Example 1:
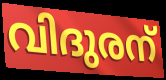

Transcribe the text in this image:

വിദുരന്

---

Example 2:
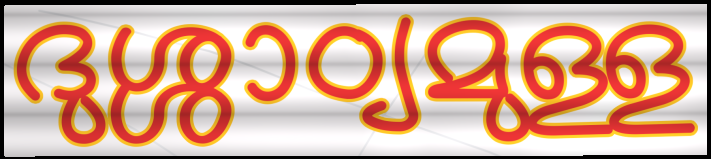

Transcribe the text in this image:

ദുശ്ശാഠ്യമുള്ള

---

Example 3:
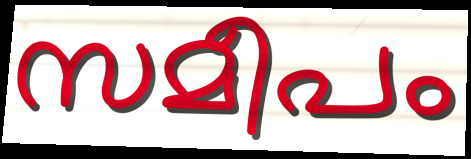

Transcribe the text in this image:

സമീപം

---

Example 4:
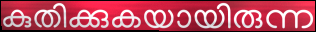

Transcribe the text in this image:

കുതിക്കുകയായിരുന്ന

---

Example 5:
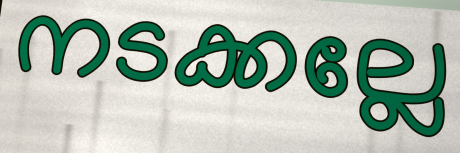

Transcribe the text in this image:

നടക്കല്ലേ